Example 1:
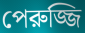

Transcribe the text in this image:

পেরুজ্জি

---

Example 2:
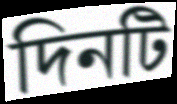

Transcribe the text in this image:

দিনটি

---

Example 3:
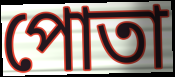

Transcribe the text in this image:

পোতা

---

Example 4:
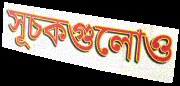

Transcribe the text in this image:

সূচকগুলোও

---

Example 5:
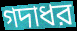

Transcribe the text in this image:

গদাধর